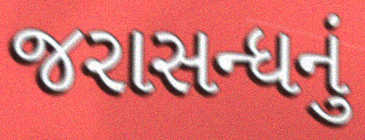
જરાસન્ધનું